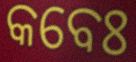
କବେଃ